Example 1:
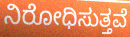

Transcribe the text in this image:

ನಿರೋಧಿಸುತ್ತವೆ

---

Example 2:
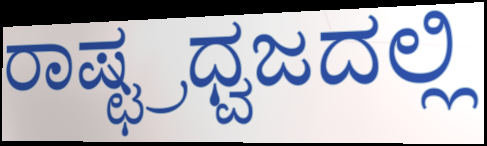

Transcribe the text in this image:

ರಾಷ್ಟ್ರಧ್ವಜದಲ್ಲಿ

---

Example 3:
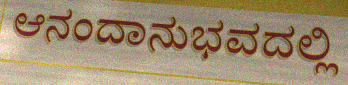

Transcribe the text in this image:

ಆನಂದಾನುಭವದಲ್ಲಿ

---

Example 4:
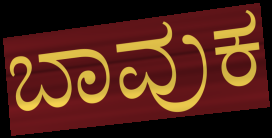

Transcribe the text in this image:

ಬಾವುಕ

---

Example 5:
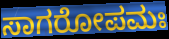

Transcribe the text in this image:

ಸಾಗರೋಪಮಃ